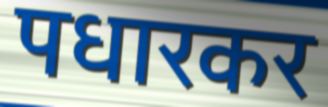
पधारकर